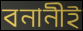
বনানীই